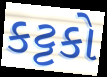
કટ્ટકો